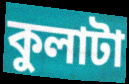
কুলাটা